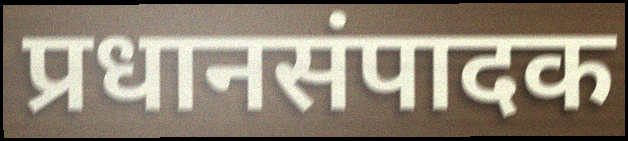
प्रधानसंपादक